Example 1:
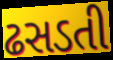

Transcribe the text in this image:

ઢસડતી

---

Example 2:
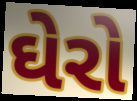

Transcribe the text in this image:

ઘેરો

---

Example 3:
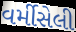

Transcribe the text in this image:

વર્મીસેલી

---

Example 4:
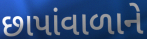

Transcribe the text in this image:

છાપાંવાળાને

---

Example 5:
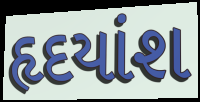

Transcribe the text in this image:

હૃદયાંશ